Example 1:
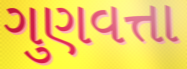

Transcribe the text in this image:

ગુણવત્તા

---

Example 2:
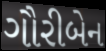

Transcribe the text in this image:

ગૌરીબેન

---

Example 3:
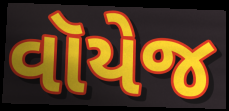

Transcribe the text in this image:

વૉયેજ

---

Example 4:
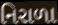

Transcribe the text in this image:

નિરાળા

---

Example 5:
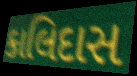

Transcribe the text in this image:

કાલિદાસ